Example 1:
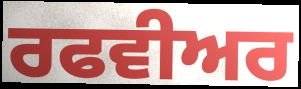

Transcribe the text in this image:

ਰਫਵੀਅਰ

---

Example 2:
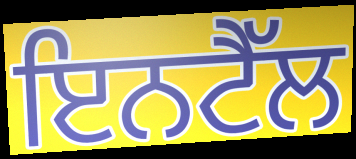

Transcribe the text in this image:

ਇਨਟੈੱਲ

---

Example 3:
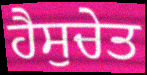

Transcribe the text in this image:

ਹੈਸੁਚੇਤ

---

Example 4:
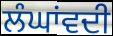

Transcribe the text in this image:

ਲੰਘਾਂਵਦੀ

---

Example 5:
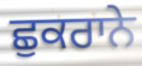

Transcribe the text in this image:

ਛੁਕਰਾਨੇ